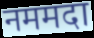
नममदा